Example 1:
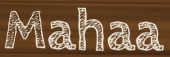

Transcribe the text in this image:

Mahaa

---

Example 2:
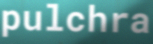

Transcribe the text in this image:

pulchra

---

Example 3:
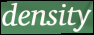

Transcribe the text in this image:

density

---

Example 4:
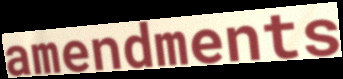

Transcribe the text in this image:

amendments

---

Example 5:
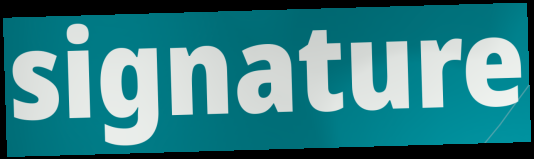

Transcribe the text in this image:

signature